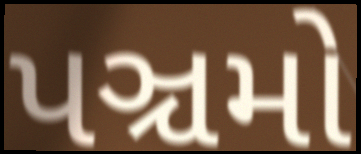
પઞ્ચમો